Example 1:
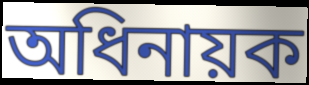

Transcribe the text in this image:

অধিনায়ক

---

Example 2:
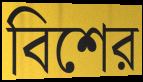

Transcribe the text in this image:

বিশের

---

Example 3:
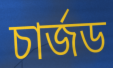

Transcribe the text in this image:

চার্জড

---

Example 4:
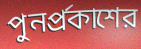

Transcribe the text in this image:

পুনর্প্রকাশের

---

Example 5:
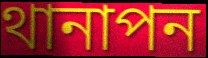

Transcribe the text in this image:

থানাপন